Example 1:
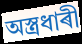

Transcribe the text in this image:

অস্ত্ৰধাৰী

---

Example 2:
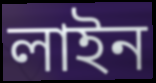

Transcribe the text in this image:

লাইন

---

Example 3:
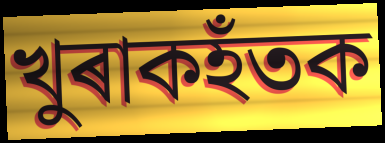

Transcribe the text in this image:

খুৰাকহঁতক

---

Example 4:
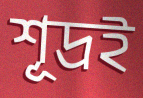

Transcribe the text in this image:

শূদ্ৰই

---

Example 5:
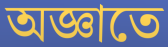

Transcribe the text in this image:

অজ্ঞাতে